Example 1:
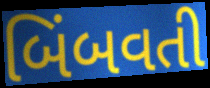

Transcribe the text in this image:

બિંબવતી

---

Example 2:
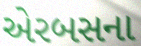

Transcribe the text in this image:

એરબસના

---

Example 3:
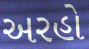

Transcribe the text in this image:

અરહો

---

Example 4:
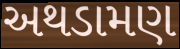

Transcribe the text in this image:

અથડામણ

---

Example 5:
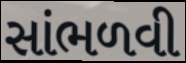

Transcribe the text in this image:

સાંભળવી